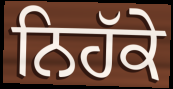
ਨਿਹੱਕੇ